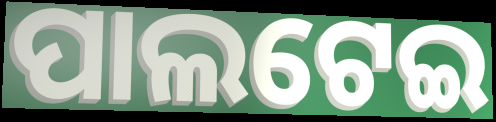
ପାଲଟେଇ